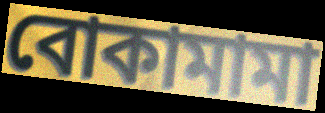
বোকামামা